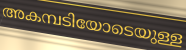
അകമ്പടിയോടെയുള്ള